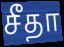
சீதா